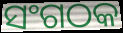
ସଂଗଠକ